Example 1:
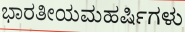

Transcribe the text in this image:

ಭಾರತೀಯಮಹರ್ಷಿಗಳು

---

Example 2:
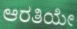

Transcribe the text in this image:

ಆರತಿಯೇ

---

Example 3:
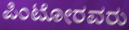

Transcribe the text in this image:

ಪಿಂಟೋರವರು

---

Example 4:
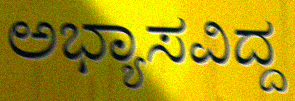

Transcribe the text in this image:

ಅಭ್ಯಾಸವಿದ್ದ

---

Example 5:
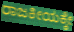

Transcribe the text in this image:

ರಾಜಕೀಯಕ್ಕೇ